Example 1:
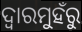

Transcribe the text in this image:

ଦ୍ଵାରମୁହଁରୁ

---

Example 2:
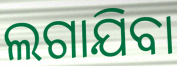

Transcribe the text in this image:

ଲଗାଯିବା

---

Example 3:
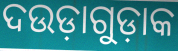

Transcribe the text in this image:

ଦଉଡ଼ାଗୁଡ଼ାକ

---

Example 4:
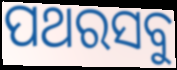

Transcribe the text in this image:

ପଥରସବୁ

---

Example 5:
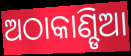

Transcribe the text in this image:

ଅଠାକାଣ୍ଡିଆ